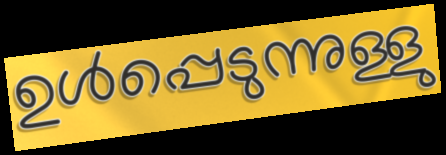
ഉൾപ്പെടുന്നുള്ളു